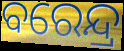
ବରେନ୍ଦ୍ର